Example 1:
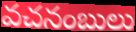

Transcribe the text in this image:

వచనంబులు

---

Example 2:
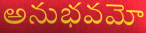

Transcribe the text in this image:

అనుభవమో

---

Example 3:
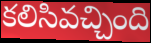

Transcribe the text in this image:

కలిసివచ్చింది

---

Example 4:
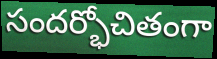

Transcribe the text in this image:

సందర్భోచితంగా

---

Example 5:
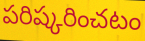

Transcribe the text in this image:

పరిష్కరించటం